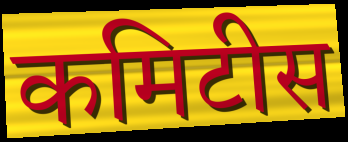
कमिटीस